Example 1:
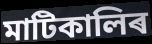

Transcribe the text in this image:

মাটিকালিৰ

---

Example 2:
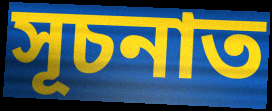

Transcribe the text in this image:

সূচনাত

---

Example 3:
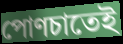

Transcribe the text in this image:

পোণচাতেই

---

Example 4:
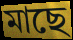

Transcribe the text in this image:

মাছে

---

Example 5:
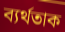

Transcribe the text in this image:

ব্যৰ্থতাক